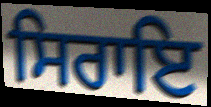
ਸਿਰਾਇ